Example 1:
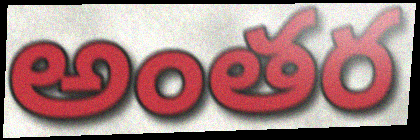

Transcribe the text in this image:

అంతర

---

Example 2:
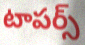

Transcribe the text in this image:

టాపర్స్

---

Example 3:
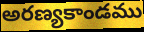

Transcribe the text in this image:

అరణ్యకాండము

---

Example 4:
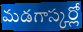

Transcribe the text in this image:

మడగాస్కర్లో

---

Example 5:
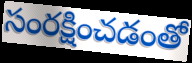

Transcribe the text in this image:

సంరక్షించడంతో